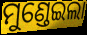
ମୁଣ୍ଡେଇଲା